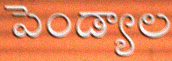
పెండ్యాల